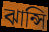
ঝান্সি